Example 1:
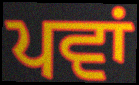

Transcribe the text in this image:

ਪਵਾਂ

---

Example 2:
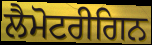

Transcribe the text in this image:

ਲੈਮੋਟਰੀਗਿਨ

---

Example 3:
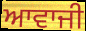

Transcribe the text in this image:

ਆਵਾਜੀ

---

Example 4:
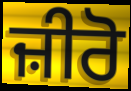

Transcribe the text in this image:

ਜ਼ੀਰੋ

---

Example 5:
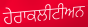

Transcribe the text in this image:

ਹੇਰਾਕਲੀਟੀਅਨ